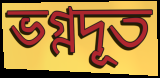
ভগ্নদূত